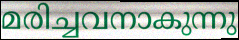
മരിച്ചവനാകുന്നു